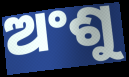
ଅଂଶୁ